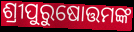
ଶ୍ରୀପୁରୁଷୋତ୍ତମଙ୍କ